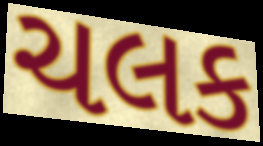
ચલક